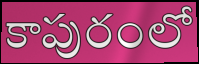
కాపురంలో